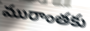
మురాంతకు